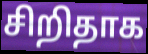
சிறிதாக